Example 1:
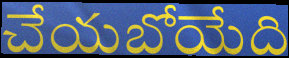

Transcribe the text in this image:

చేయబోయేది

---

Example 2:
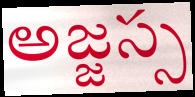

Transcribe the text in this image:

అజ్జస్స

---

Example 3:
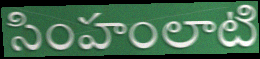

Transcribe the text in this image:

సింహంలాటి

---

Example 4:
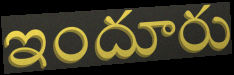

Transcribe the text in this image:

ఇందూరు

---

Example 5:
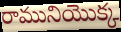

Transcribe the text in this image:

రామునియొక్క